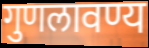
गुणलावण्य